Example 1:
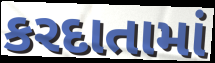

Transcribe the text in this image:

કરદાતામાં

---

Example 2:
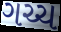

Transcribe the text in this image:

ગચ્ચ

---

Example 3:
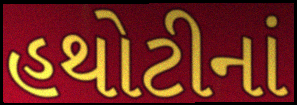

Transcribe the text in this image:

હથોટીનાં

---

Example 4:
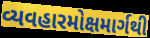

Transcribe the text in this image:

વ્યવહારમોક્ષમાર્ગથી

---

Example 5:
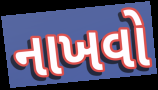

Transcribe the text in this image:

નાખવો